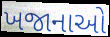
ખજાનાઓ